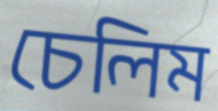
চেলিম